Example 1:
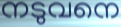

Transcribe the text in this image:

നടുവനെ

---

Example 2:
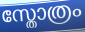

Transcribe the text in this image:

സ്തോത്രം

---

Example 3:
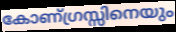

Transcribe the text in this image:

കോണ്ഗ്രസ്സിനെയും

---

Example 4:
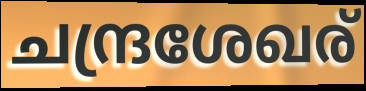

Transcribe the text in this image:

ചന്ദ്രശേഖര്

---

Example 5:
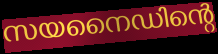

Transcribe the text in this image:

സയനൈഡിന്റെ